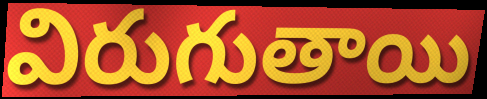
విరుగుతాయి